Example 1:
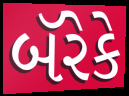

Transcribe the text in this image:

બૅરેકે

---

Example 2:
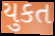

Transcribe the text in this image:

યુકત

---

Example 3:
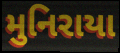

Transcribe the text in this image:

મુનિરાયા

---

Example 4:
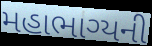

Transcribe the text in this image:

મહાભાગ્યની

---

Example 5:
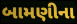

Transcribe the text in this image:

બામણીના